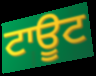
ਟਾਊਟ